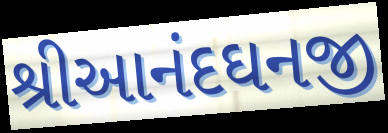
શ્રીઆનંદઘનજી